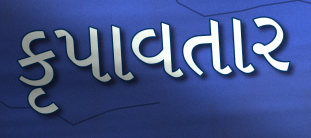
કૃપાવતાર